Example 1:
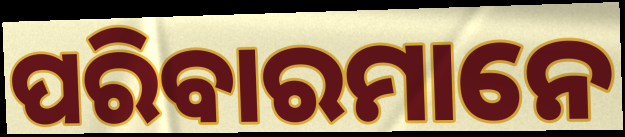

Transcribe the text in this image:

ପରିବାରମାନେ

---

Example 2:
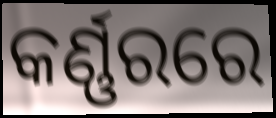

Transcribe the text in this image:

କର୍ଣ୍ଣରରେ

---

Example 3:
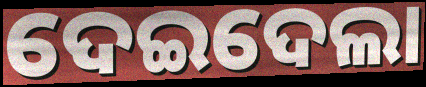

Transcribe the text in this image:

ଦେଇଦେଲା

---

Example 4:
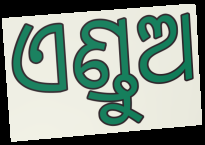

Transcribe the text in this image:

ଏଣ୍ଡୁଅ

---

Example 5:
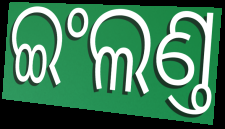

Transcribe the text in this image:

ଇଂଲଣ୍ତ